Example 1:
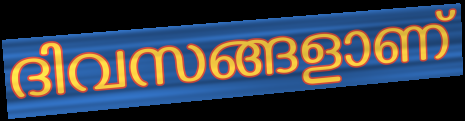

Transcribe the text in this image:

ദിവസങ്ങളാണ്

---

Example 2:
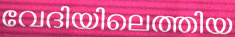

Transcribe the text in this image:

വേദിയിലെത്തിയ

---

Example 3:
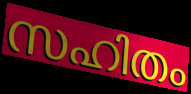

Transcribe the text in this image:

സഹിതം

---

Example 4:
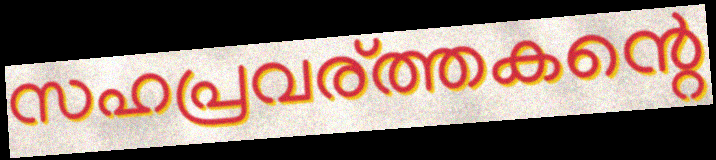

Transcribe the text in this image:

സഹപ്രവര്ത്തകന്റെ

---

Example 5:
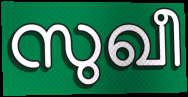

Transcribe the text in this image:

സുഖീ